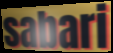
sabari